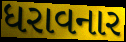
ધરાવનાર